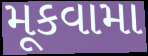
મૂકવામા